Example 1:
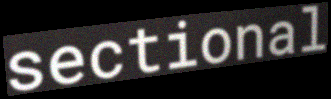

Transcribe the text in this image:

sectional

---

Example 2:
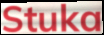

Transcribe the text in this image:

Stuka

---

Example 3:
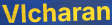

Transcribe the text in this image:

VIcharan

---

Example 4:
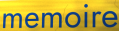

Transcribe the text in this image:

memoire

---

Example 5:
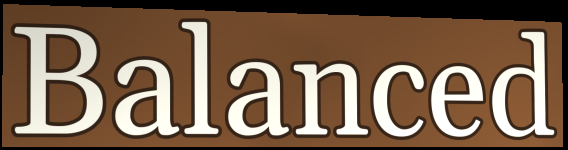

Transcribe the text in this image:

Balanced